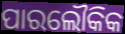
ପାରଲୌକିକ